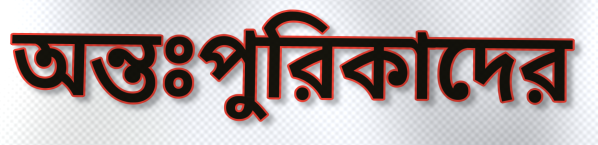
অন্তঃপুরিকাদের